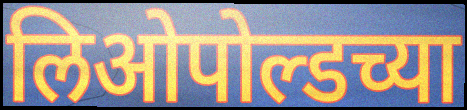
लिओपोल्डच्या